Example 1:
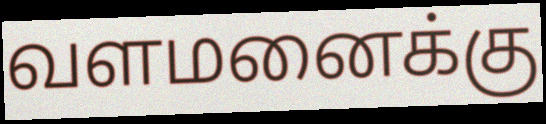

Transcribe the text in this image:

வளமனைக்கு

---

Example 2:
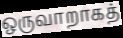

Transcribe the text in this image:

ஒருவாறாகத்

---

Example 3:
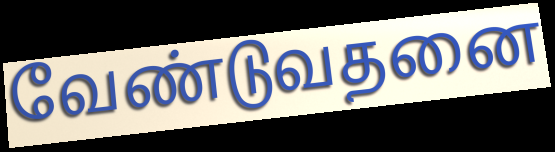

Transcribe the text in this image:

வேண்டுவதனை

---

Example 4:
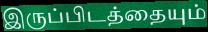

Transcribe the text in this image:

இருப்பிடத்தையும்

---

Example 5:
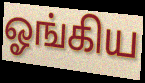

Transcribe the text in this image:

ஓங்கிய